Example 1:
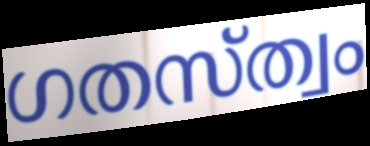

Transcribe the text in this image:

ഗതസ്ത്വം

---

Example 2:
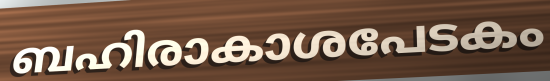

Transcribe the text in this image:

ബഹിരാകാശപേടകം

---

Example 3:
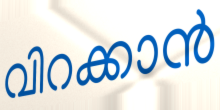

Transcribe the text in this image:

വിറക്കാൻ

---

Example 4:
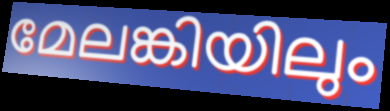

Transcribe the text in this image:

മേലങ്കിയിലും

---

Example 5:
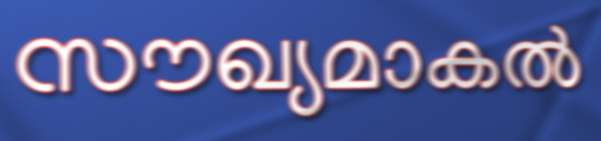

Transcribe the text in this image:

സൗഖ്യമാകൽ